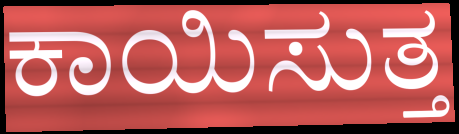
ಕಾಯಿಸುತ್ತ